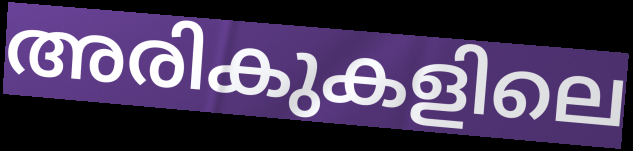
അരികുകളിലെ